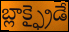
బ్లాక్ఫ్రైడే